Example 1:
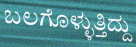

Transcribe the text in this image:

ಬಲಗೊಳ್ಳುತ್ತಿದ್ದು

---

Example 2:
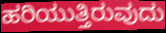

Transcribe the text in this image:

ಹರಿಯುತ್ತಿರುವುದು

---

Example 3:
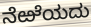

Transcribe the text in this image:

ನೆಱೆಯದು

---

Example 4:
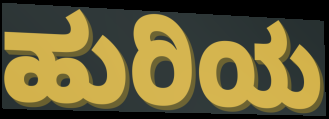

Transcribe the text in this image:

ಹುರಿಯ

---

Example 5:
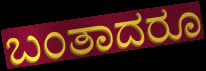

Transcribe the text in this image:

ಬಂತಾದರೂ